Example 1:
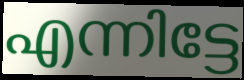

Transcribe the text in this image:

എന്നിട്ടേ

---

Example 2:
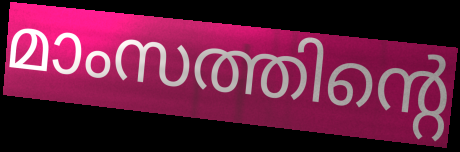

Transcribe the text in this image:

മാംസത്തിന്റെ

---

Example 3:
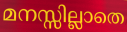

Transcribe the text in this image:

മനസ്സില്ലാതെ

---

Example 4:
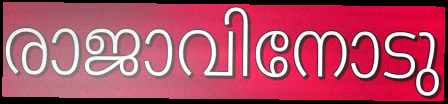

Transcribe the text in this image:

രാജാവിനോടു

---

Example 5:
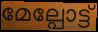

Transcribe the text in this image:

മേല്പോട്ട്